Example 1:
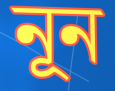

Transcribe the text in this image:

নূন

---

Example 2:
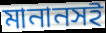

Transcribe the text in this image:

মানানসই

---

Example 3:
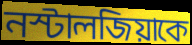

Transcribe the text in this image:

নস্টালজিয়াকে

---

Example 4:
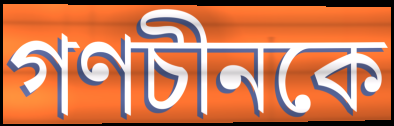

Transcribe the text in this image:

গণচীনকে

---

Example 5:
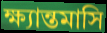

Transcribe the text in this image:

ক্ষ্যান্তমাসি